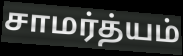
சாமர்த்யம்